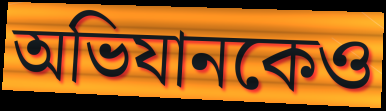
অভিযানকেও